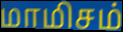
மாமிசம்